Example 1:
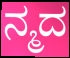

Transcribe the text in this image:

ನ್ಮದ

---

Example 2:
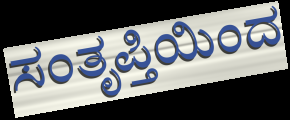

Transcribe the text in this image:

ಸಂತೃಪ್ತಿಯಿಂದ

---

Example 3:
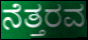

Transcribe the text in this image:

ನೆತ್ತರವ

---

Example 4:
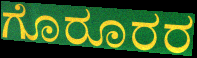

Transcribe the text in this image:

ಗೊರೂರರ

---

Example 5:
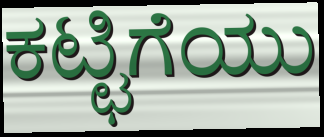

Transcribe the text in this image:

ಕಟ್ಟಿಗೆಯು